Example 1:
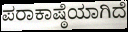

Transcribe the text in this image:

ಪರಾಕಾಷ್ಠೆಯಾಗಿದೆ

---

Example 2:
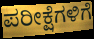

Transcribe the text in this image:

ಪರೀಕ್ಷೆಗಳಿಗೆ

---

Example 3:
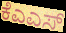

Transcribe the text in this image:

ಕೆಎಎಸ್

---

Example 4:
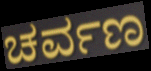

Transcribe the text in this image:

ಚರ್ವಣ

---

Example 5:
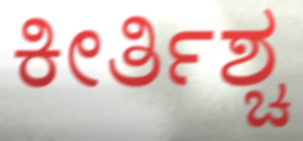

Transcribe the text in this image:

ಕೀರ್ತಿಶ್ಚ